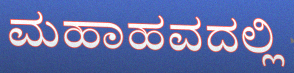
ಮಹಾಹವದಲ್ಲಿ